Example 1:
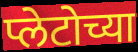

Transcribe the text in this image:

प्लेटोच्या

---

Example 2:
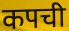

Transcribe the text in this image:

कपची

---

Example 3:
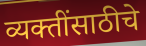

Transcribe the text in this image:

व्यक्तींसाठीचे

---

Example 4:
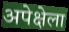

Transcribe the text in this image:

अपेक्षेला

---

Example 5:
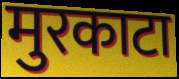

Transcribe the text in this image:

मुरकाटा